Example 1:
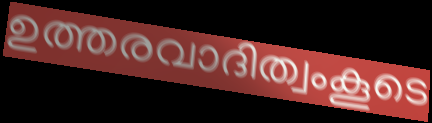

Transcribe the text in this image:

ഉത്തരവാദിത്വംകൂടെ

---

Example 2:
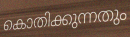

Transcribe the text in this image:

കൊതിക്കുന്നതും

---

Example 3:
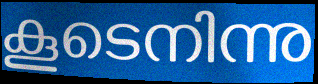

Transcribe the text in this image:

കൂടെനിന്നു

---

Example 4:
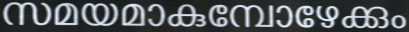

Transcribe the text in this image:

സമയമാകുമ്പോഴേക്കും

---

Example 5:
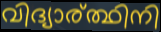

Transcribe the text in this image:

വിദ്യാര്ത്ഥിനി